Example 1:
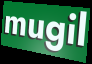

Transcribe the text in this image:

mugil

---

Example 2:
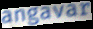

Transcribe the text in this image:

angavar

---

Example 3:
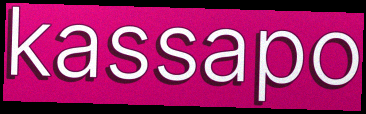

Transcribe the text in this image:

kassapo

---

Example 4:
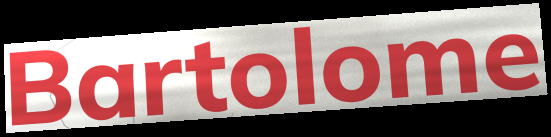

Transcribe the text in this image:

Bartolome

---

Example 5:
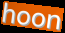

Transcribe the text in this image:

hoon